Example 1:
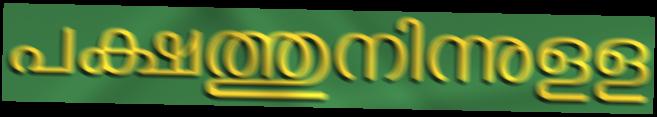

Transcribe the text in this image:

പക്ഷത്തുനിന്നുളള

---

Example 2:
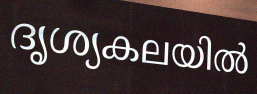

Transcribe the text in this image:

ദൃശ്യകലയിൽ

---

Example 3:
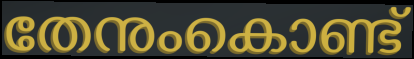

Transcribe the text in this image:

തേനുംകൊണ്ട്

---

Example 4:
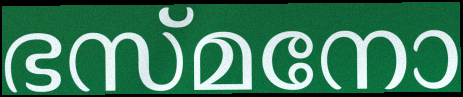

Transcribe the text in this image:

ഭസ്മനോ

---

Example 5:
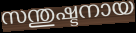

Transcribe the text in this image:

സന്തുഷ്ടനായ